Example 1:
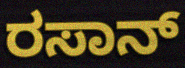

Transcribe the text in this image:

ರಸಾನ್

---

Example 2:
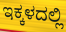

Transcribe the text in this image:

ಇಕ್ಕಳದಲ್ಲಿ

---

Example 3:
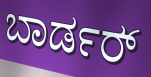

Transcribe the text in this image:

ಬಾರ್ಡರ್‍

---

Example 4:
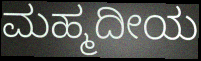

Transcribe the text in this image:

ಮಹ್ಮದೀಯ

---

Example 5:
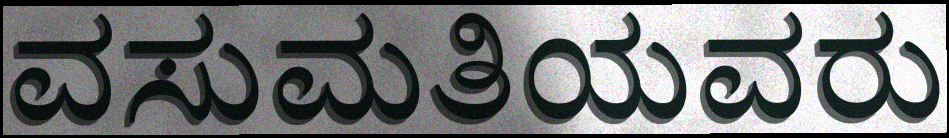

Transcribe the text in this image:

ವಸುಮತಿಯವರು